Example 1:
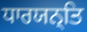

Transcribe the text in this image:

ਧਾਰਯਨ੍ਤਿ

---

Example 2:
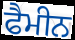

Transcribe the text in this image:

ਫੈਮੀਨ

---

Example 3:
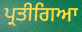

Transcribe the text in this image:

ਪ੍ਰਤੀਗਿਆ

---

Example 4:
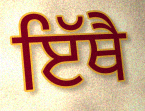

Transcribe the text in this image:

ਇੱਥੈ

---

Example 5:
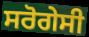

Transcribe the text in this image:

ਸਰੋਗੇਸੀ